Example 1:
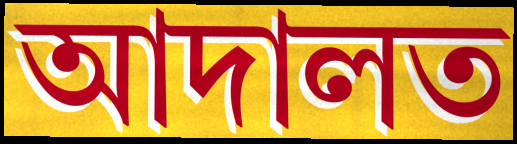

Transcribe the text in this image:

আদালত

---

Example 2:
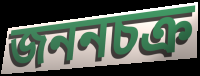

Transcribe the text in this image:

জননচক্র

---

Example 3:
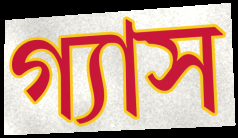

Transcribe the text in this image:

গ্যাস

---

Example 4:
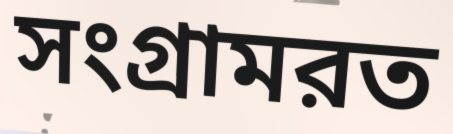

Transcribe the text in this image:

সংগ্রামরত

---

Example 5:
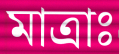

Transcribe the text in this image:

মাত্রাঃ